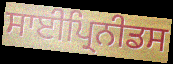
ਸਾਈਪ੍ਰਿਨੀਡਸ